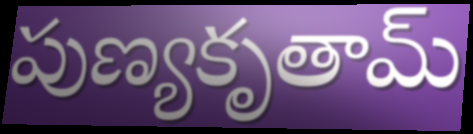
పుణ్యకృతామ్